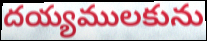
దయ్యములకును